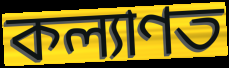
কল্যাণত